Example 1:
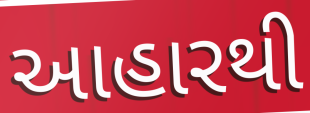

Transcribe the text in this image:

આહારથી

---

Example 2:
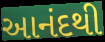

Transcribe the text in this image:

આનંદથી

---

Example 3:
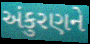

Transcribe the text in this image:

અંકુરણને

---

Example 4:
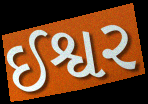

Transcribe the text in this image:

ઈશ્વર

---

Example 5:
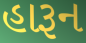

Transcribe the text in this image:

હારૂન